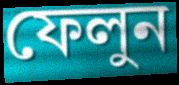
ফেলুন